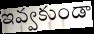
ఇవ్వకుండా